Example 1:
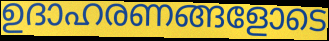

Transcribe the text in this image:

ഉദാഹരണങ്ങളോടെ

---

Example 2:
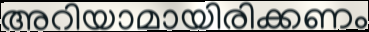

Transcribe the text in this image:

അറിയാമായിരിക്കണം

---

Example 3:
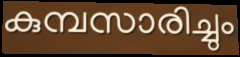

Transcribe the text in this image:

കുമ്പസാരിച്ചും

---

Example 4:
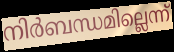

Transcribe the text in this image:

നിർബന്ധമില്ലെന്ന്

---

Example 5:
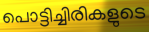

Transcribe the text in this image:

പൊട്ടിച്ചിരികളുടെ